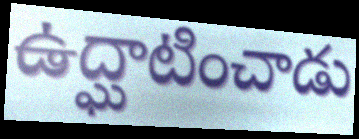
ఉద్ఘాటించాడు